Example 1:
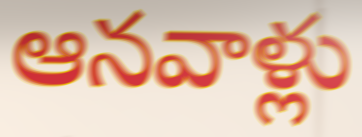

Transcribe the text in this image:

ఆనవాళ్లు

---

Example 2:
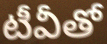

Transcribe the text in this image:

టీవీతో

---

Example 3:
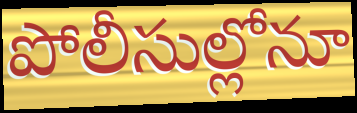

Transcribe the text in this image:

పోలీసుల్లోనూ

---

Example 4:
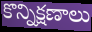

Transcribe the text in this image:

కొన్నిక్షణాలు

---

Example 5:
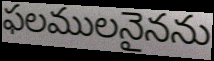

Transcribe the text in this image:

ఫలములనైనను